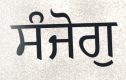
ਸੰਜੋਗੁ